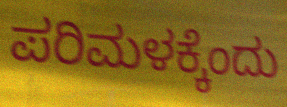
ಪರಿಮಳಕ್ಕೆಂದು